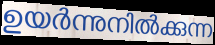
ഉയർന്നുനിൽക്കുന്ന